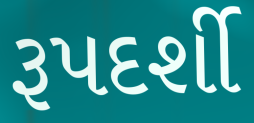
રૂપદર્શી